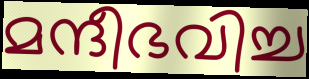
മന്ദീഭവിച്ച